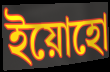
ইয়োহো